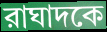
রাঘাদকে